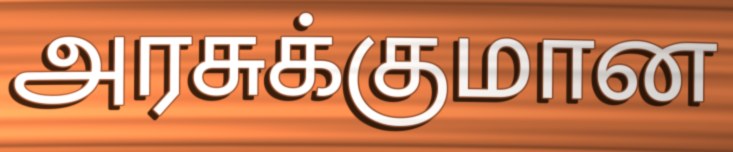
அரசுக்குமான